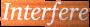
Interfere